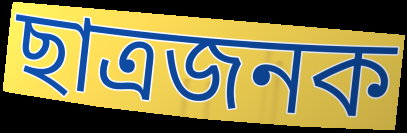
ছাত্ৰজনক